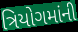
ત્રિયોગમાંની